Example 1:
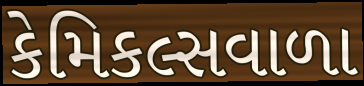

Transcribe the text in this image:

કેમિકલ્સવાળા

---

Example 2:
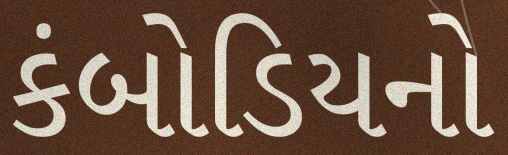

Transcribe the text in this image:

કંબોડિયનો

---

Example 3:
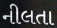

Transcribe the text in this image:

નીલતા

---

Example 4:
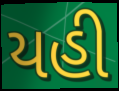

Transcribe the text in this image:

યહી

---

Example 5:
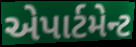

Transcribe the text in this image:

એપાર્ટમેન્ટ